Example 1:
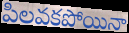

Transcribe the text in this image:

పిలవకపోయినా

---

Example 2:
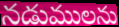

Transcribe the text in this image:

నడుములను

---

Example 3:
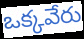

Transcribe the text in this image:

ఒక్కవేరు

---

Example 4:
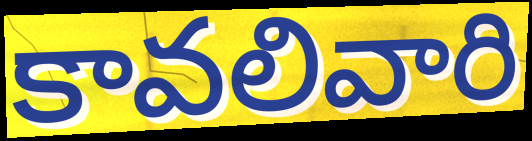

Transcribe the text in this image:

కావలివారి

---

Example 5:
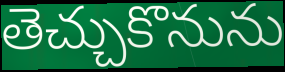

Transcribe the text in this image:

తెచ్చుకొనును